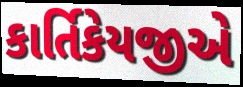
કાર્તિકેયજીએ